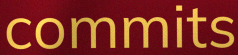
commits